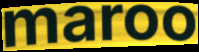
maroo